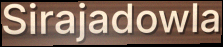
Sirajadowla